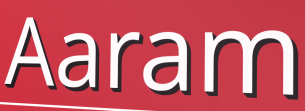
Aaram